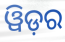
ୱିଡ଼ର